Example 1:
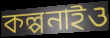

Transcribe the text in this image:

কল্পনাইও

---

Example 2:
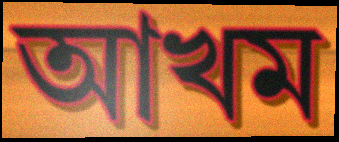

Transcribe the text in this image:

আখম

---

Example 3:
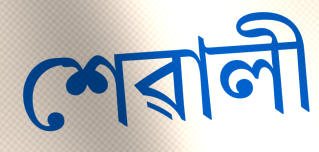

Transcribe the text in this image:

শেৱালী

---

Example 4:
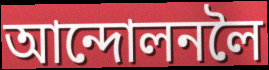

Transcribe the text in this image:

আন্দোলনলৈ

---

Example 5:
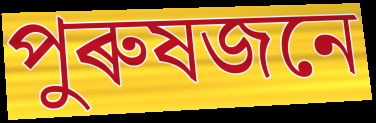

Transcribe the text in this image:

পুৰুষজনে